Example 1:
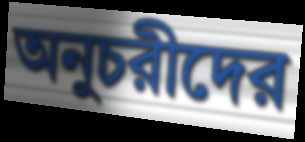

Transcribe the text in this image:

অনুচরীদের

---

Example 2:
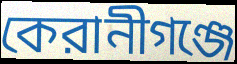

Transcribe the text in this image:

কেরানীগঞ্জে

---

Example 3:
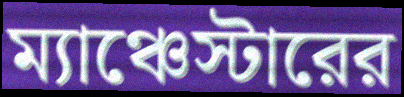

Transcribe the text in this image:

ম্যাঞ্চেস্টারের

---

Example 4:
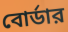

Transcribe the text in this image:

বোর্ডার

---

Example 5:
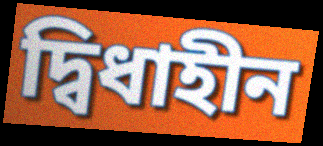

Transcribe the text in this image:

দ্বিধাহীন